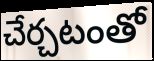
చేర్చటంతో